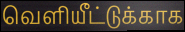
வெளியீட்டுக்காக